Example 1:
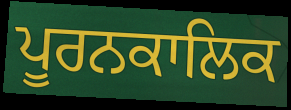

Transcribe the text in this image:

ਪੂਰਨਕਾਲਿਕ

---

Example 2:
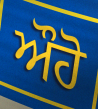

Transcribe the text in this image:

ਔਹੋ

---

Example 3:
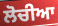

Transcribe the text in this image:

ਲੋਚੀਆ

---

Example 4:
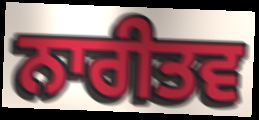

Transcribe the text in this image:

ਨਾਰੀਤਵ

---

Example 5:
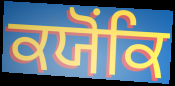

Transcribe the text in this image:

ਕਯੋਂਕਿ